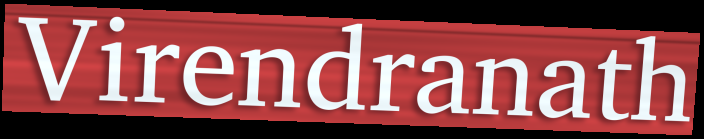
Virendranath